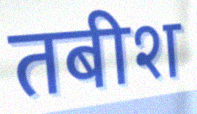
तबीश